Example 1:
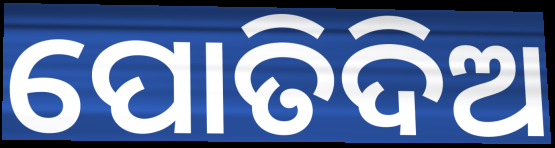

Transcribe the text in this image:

ପୋତିଦିଅ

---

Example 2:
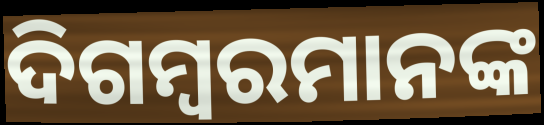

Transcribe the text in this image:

ଦିଗମ୍ବରମାନଙ୍କ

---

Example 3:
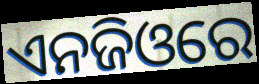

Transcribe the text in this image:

ଏନଜିଓରେ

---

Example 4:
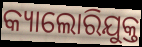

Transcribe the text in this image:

କ୍ୟାଲୋରିଯୁକ୍ତ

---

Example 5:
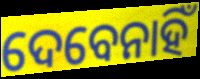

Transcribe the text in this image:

ଦେବେନାହିଁ